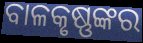
ବାଳକୃଷ୍ଣଙ୍କର